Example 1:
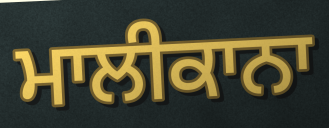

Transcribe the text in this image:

ਮਾਲੀਕਾਨਾ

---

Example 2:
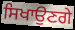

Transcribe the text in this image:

ਸਿਖਾਉਣਗੇ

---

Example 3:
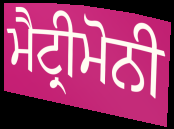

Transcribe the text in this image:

ਮੈਟ੍ਰੀਮੋਨੀ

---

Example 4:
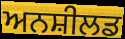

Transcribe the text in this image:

ਅਨਸ਼ੀਲਡ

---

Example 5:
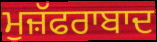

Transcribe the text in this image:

ਮੁਜ਼ੱਫਰਾਬਾਦ